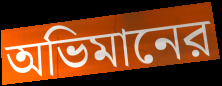
অভিমানের